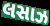
લસાઝ